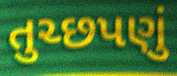
તુચ્છપણું